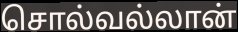
சொல்வல்லான்